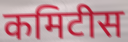
कमिटीस